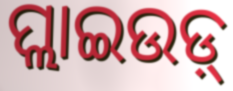
ପ୍ଲାଇଉଡ଼୍